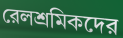
রেলশ্রমিকদের